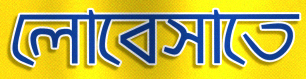
লোবেসাতে